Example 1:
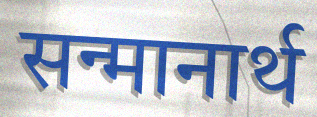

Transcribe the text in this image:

सन्मानार्थ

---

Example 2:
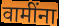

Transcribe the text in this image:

वामींना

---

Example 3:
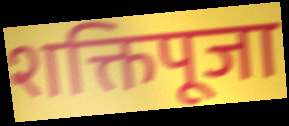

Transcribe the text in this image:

शक्तिपूजा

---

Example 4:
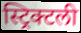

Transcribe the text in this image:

स्ट्रिक्टली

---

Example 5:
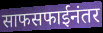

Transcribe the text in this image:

साफसफाईनंतर